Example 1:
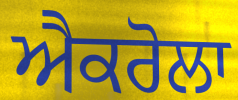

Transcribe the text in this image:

ਐਕਰੋਲਾ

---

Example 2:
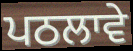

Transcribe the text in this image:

ਪਠਲਾਵੇ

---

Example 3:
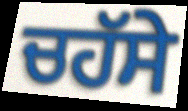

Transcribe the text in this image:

ਚਹੱਸੇ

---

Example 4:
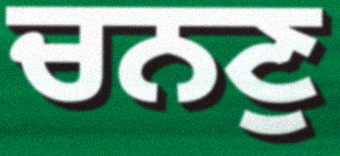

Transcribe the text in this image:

ਚਨਣੁ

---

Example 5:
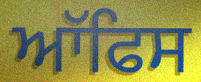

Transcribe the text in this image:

ਆੱਫਿਸ